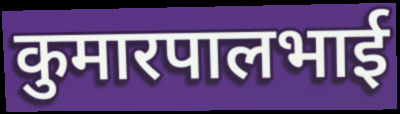
कुमारपालभाई